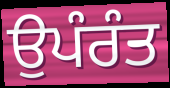
ਉਪੰਰੰਤ